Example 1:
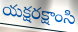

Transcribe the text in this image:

యక్షరక్షాంసి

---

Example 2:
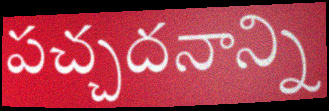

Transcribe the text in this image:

పచ్చదనాన్ని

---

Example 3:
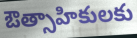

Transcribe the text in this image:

ఔత్సాహికులకు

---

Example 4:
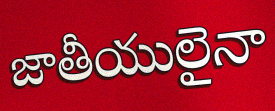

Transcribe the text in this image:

జాతీయులైనా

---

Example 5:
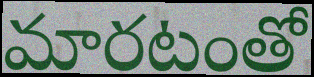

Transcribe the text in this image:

మారటంతో